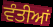
ਵੰਤੀਆਂ